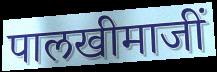
पालखीमाजीं